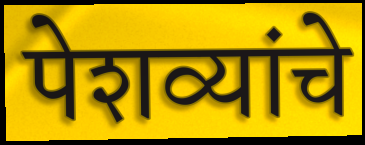
पेशव्यांचे